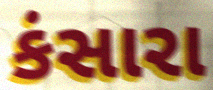
કંસારા